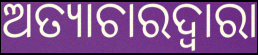
ଅତ୍ୟାଚାରଦ୍ୱାରା